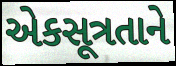
એકસૂત્રતાને